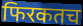
फिरकतच